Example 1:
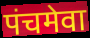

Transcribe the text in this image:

पंचमेवा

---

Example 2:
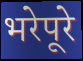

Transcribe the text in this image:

भरेपूरे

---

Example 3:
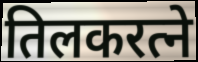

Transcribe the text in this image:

तिलकरत्ने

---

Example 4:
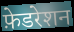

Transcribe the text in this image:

फ़ेडरेशन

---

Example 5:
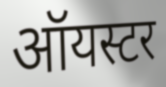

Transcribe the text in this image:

ऑयस्टर